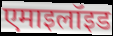
एमाइलॉइड